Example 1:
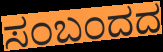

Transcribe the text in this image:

ಸಂಬಂದದ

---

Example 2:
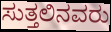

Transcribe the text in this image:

ಸುತ್ತಲಿನವರು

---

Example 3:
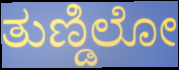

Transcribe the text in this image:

ತುಣ್ಡಿಲೋ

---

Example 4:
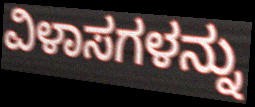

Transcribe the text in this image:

ವಿಳಾಸಗಳನ್ನು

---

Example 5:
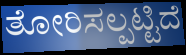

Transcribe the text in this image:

ತೋರಿಸಲ್ಪಟ್ಟಿದೆ